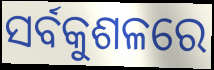
ସର୍ବକୁଶଳରେ